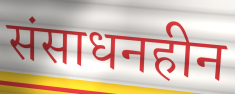
संसाधनहीन